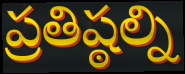
ప్రతిష్ఠల్ని